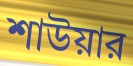
শাউয়ার